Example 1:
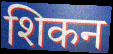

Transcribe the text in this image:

शिकन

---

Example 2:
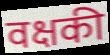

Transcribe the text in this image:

वक्षकी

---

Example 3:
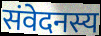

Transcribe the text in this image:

संवेदनस्य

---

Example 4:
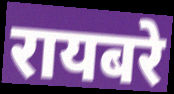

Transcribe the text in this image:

रायबरे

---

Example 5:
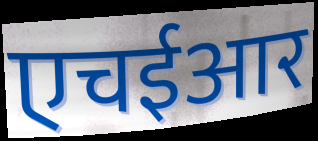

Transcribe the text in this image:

एचईआर